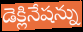
డెక్లినేషన్ను